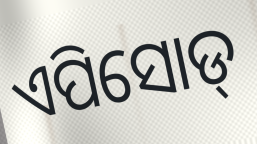
ଏପିସୋଡ୍